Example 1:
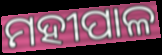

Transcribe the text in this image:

ମହୀପାଳ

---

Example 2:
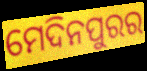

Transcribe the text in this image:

ମେଦିନପୁରର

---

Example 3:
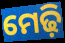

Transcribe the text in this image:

ମେଢ଼ି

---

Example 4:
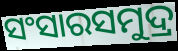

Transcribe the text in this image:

ସଂସାରସମୁଦ୍ର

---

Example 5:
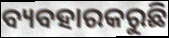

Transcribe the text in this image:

ବ୍ୟବହାରକରୁଛି